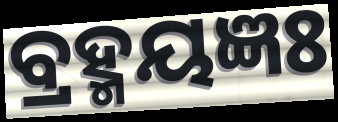
ବ୍ରହ୍ମୟଜ୍ଞଃ